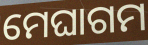
ମେଘାଗମ